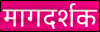
मागदर्शक